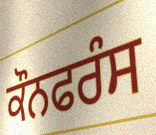
ਕੌਨਫਰੰਸ